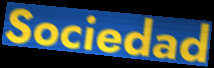
Sociedad